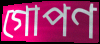
গোপণ